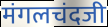
मंगलचंदजी